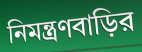
নিমন্ত্রণবাড়ির